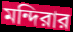
মন্দিরার